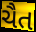
ચૈત